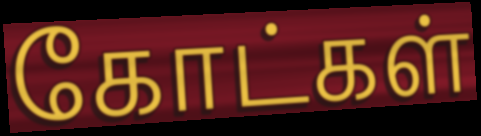
கோட்கள்